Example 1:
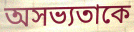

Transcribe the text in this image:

অসভ্যতাকে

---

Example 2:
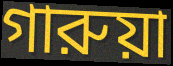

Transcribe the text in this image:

গারুয়া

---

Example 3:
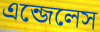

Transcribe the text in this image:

এন্জেলেস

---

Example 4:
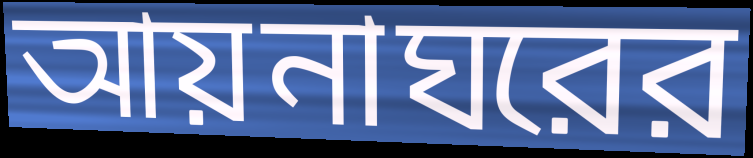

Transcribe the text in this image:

আয়নাঘরের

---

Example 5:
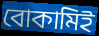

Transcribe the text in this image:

বোকামিই